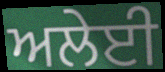
ਅਲੇਈ